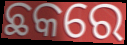
ଛକରେ